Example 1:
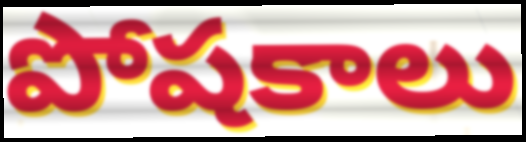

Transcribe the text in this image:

పోషకాలు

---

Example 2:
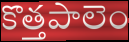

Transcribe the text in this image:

కొత్తపాలెం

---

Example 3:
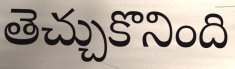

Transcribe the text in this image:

తెచ్చుకొనింది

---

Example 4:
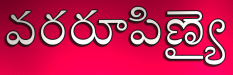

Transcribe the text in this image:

వరరూపిణ్యై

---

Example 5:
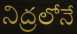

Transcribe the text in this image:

నిద్రలోనే